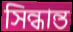
সিন্ধান্ত